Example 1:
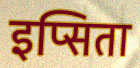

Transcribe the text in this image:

इप्सिता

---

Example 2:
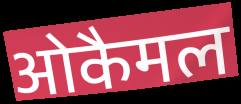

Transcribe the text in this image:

ओकैमल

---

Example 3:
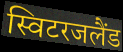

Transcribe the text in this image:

स्विटरजलैंड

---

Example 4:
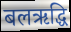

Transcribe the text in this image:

बलऋद्धि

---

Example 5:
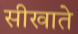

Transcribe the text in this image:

सीखाते